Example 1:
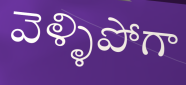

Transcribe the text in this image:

వెళ్ళిపోగా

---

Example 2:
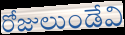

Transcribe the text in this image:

రోజులుండేవి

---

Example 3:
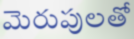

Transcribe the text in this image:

మెరుపులతో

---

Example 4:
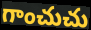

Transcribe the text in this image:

గాంచుచు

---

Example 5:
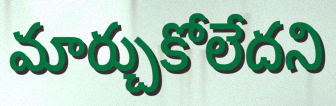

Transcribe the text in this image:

మార్చుకోలేదని